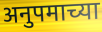
अनुपमाच्या